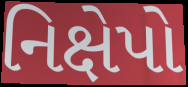
નિક્ષેપો